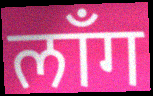
लाँग